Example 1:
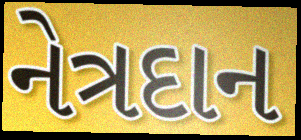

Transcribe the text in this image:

નેત્રદાન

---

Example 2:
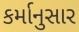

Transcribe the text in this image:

કર્માનુસાર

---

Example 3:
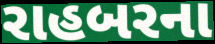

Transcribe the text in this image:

રાહબરના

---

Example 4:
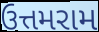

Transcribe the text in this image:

ઉત્તમરામ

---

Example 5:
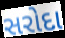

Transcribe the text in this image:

સરોદા